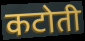
कटोती